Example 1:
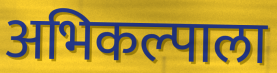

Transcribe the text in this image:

अभिकल्पाला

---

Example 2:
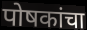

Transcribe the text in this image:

पोषकांचा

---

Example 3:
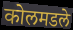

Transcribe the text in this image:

कोलमडले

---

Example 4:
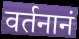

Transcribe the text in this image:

वर्तनानं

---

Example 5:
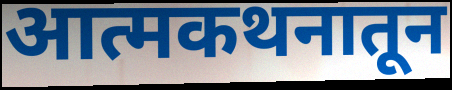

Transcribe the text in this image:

आत्मकथनातून